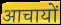
आचायों